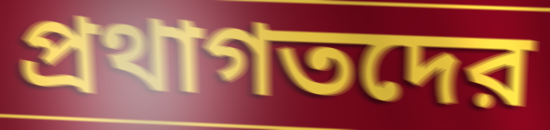
প্রথাগতদের